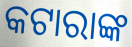
କଟାରାଙ୍କ